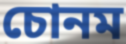
চোনম